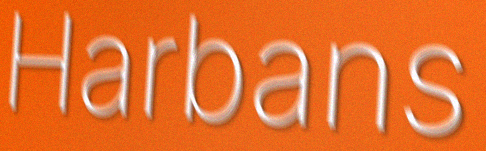
Harbans